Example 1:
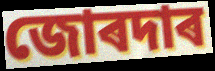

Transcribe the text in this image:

জোৰদাৰ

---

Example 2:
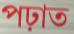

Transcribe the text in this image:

পঢ়াত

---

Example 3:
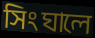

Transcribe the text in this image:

সিংঘালে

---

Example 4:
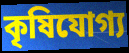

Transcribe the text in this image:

কৃষিযোগ্য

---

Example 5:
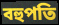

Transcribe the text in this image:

বহুপতি